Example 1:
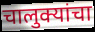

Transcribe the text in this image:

चालुक्यांचा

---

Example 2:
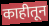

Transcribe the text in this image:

काहीतून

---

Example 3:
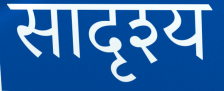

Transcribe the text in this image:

सादृश्य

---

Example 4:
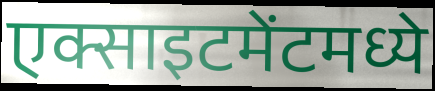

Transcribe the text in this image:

एक्साइटमेंटमध्ये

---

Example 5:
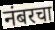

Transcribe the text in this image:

नंबरचा